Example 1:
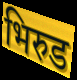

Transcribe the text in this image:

भिरुड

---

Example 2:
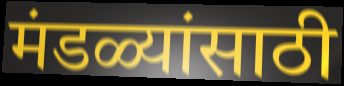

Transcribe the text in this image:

मंडळ्यांसाठी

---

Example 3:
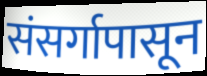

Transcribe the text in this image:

संसर्गापासून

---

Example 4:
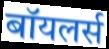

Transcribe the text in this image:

बॉयलर्स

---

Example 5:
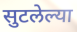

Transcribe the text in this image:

सुटलेल्या